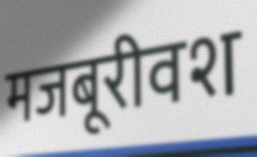
मजबूरीवश